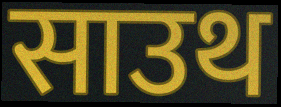
साउथ